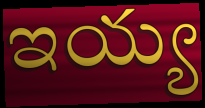
ఇయ్య